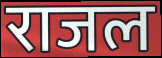
राजल